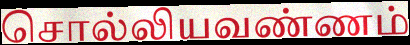
சொல்லியவண்ணம்